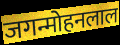
जगन्मोहनलाल